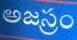
అజస్రం